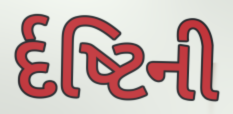
ર્દષ્ટિની